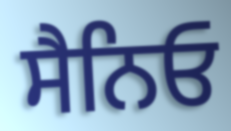
ਸੈਨਿਓ